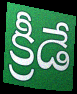
క్రీడే